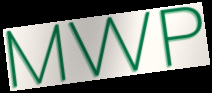
MWP